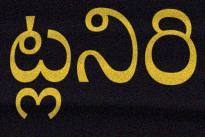
ట్లనిరి